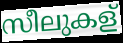
സീലുകള്